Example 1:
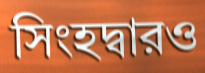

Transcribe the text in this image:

সিংহদ্বারও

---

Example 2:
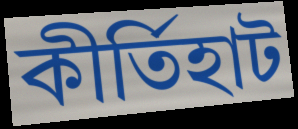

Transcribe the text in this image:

কীর্তিহাট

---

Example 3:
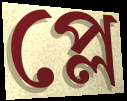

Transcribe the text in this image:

প্লে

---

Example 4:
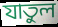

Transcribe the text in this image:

যাতুল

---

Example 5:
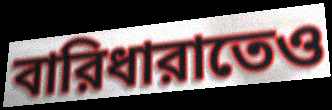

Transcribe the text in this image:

বারিধারাতেও